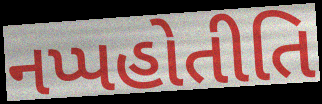
નપ્પહોતીતિ